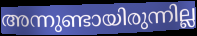
അന്നുണ്ടായിരുന്നില്ല